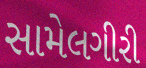
સામેલગીરી